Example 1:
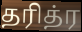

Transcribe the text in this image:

தரித்ர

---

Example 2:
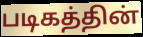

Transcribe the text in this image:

படிகத்தின்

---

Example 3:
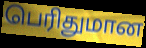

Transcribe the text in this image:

பெரிதுமான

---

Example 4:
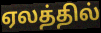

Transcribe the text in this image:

ஏலத்தில்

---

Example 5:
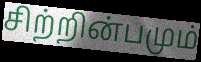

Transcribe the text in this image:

சிற்றின்பமும்